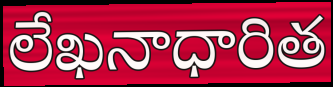
లేఖనాధారిత